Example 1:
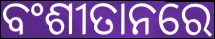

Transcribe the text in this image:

ବଂଶୀତାନରେ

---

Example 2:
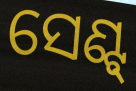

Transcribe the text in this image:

ସେଣ୍ଟ୍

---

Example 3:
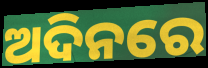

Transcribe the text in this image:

ଅଦିନରେ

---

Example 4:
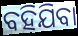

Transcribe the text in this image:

ବହିଯିବା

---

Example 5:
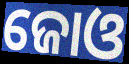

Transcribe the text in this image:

ଜୋଓ